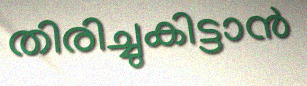
തിരിച്ചുകിട്ടാൻ